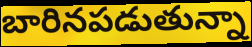
బారినపడుతున్నా